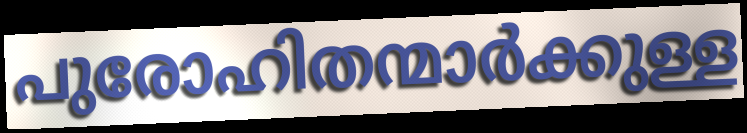
പുരോഹിതന്മാർക്കുള്ള